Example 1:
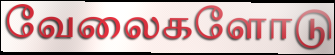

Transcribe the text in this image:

வேலைகளோடு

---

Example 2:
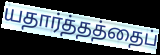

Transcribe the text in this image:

யதார்த்தத்தைப்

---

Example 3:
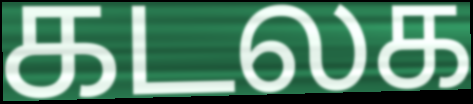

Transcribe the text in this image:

கடலக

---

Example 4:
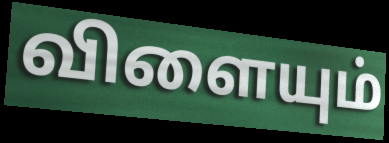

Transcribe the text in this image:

விளையும்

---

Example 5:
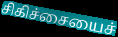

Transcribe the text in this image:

சிகிச்சையைச்